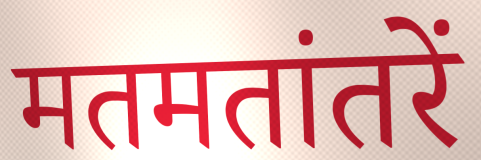
मतमतांतरें